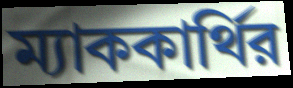
ম্যাককার্থির